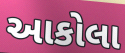
આકોલા